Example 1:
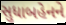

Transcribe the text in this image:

સુધાબહેનને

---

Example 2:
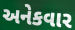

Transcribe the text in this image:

અનેકવાર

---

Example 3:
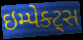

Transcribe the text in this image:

ઇમ્પેક્ટ્સ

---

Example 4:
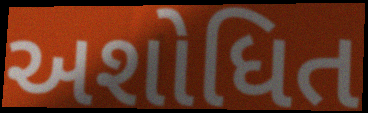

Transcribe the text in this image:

અશોધિત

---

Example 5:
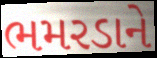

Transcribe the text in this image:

ભમરડાને